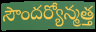
సౌందర్యోన్మత్త